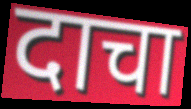
दाचा